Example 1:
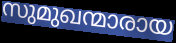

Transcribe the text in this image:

സുമുഖന്മാരായ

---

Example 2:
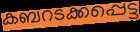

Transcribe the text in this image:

കബറടക്കപ്പെട്ട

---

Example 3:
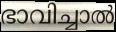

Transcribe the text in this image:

ഭാവിച്ചാൽ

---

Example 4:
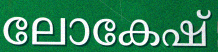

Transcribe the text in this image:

ലോകേഷ്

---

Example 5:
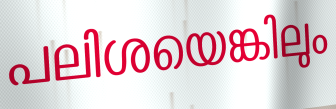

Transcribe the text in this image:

പലിശയെങ്കിലും